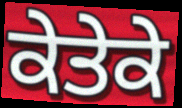
ਕੇਤੇਕੇ